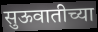
सुऊवातीच्या